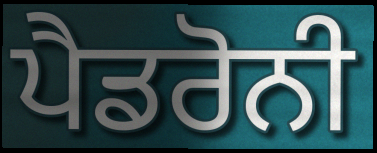
ਪੈਡਰੋਨੀ